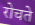
रोचते